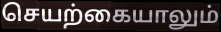
செயற்கையாலும்